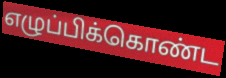
எழுப்பிக்கொண்ட